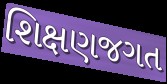
શિક્ષણજગત